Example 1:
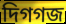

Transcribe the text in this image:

দিগগজ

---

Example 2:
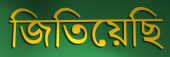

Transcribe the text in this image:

জিতিয়েছি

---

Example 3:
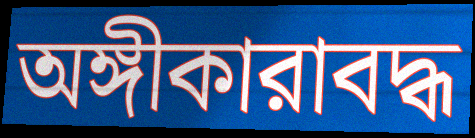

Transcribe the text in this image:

অঙ্গীকারাবদ্ধ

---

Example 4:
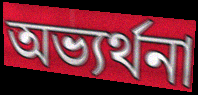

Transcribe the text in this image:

অভ্যর্থনা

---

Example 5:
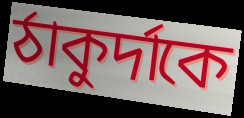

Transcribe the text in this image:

ঠাকুর্দাকে